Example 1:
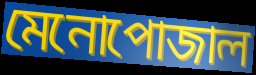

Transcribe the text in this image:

মেনোপোজাল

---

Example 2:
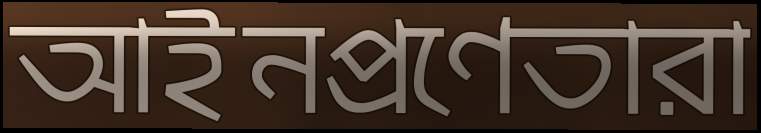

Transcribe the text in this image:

আইনপ্রণেতারা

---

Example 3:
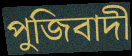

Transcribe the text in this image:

পুজিবাদী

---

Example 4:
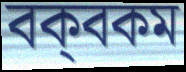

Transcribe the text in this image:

বক্‌বকম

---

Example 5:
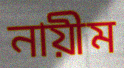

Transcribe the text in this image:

নায়ীম